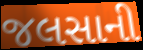
જલસાની